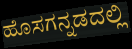
ಹೊಸಗನ್ನಡದಲ್ಲಿ